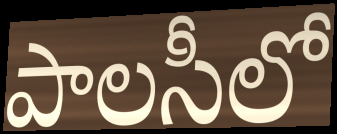
పాలసీలో